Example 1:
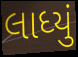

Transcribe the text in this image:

લાધ્યું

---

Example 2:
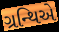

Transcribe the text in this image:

ગ્રન્થિએ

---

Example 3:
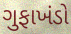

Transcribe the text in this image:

ગુફાખંડો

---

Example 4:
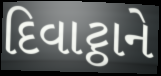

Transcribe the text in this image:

દિવાટ્ઠાને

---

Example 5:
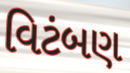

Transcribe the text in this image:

વિટંબણ